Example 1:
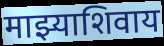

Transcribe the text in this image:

माझ्याशिवाय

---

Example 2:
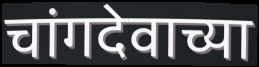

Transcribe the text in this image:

चांगदेवाच्या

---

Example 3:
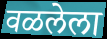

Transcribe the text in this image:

वळलेला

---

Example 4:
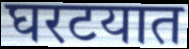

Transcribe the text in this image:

घरटयात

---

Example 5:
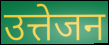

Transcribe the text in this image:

उत्तेजन